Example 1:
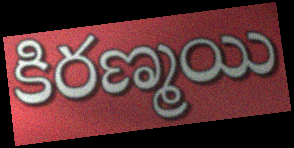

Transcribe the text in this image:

కిరణ్మయి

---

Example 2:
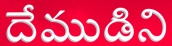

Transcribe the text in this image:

దేముడిని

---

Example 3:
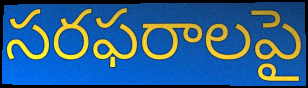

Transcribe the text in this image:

సరఫరాలపై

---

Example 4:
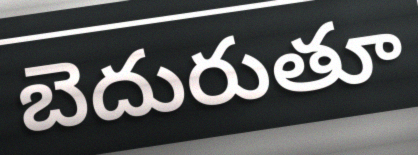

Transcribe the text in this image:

బెదురుతూ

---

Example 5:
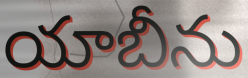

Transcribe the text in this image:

యాబీను